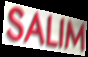
SALIM